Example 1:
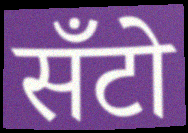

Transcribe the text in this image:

सँटो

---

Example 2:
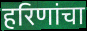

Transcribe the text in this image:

हरिणांचा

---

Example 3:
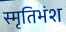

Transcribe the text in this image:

स्मृतिभंश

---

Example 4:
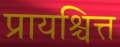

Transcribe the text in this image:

प्रायश्चित्त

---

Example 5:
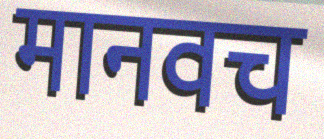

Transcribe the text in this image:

मानवच